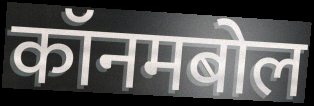
कॉनमबोल